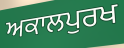
ਅਕਾਲਪੁਰਖ